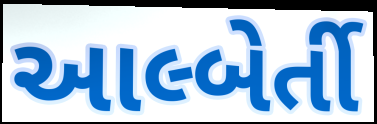
આલ્બેર્તી